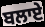
ਬਲਾਏ